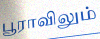
பூராவிலும்